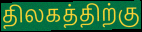
திலகத்திற்கு